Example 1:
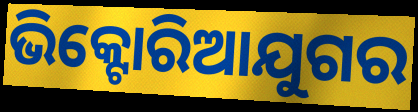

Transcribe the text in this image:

ଭିକ୍ଟୋରିଆଯୁଗର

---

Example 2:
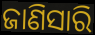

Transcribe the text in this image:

ଜାଣିସାରି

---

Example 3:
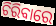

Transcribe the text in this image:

ଚିରିବାରେ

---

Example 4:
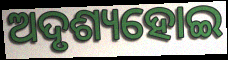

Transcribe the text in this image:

ଅଦୃଶ୍ୟହୋଇ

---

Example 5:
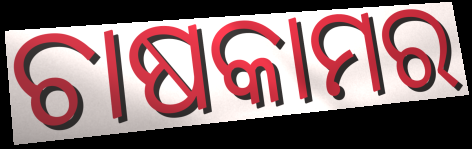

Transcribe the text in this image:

ଚାଷକାମର